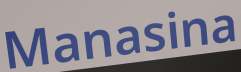
Manasina